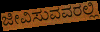
ಜೀವಿಸುವವರಲ್ಲಿ